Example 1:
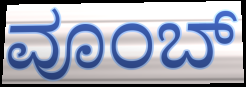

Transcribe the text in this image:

ವೂಂಬ್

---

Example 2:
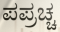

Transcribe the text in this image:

ಪಪ್ರಚ್ಚ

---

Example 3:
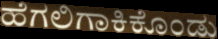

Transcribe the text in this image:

ಹೆಗಲಿಗಾಕಿಕೊಂಡು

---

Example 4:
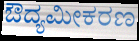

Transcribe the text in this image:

ಔದ್ಯಮೀಕರಣ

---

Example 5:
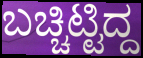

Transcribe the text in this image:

ಬಚ್ಚಿಟ್ಟಿದ್ದ